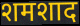
शमशाद